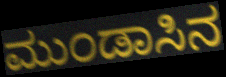
ಮುಂಡಾಸಿನ